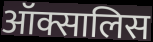
ऑक्सालिस